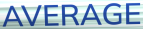
AVERAGE